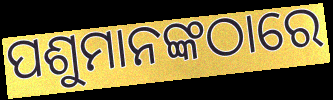
ପଶୁମାନଙ୍କଠାରେ